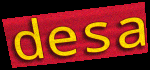
desa